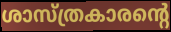
ശാസ്ത്രകാരന്റെ